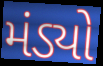
મંડ્યો